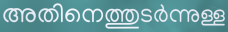
അതിനെത്തുടർന്നുള്ള